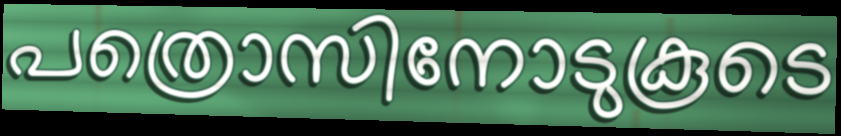
പത്രൊസിനോടുകൂടെ